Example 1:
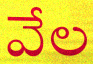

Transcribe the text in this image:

వేల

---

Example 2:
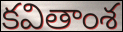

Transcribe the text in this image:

కవితాంశ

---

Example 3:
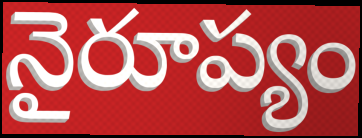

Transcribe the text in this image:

నైరూప్యం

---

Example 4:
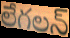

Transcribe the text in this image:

లేగలన్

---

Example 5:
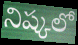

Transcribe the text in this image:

నిష్కలో